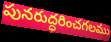
పునరుద్ధరించగలము